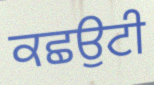
ਕਛਉਟੀ